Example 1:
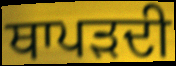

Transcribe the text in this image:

ਥਾਪੜਦੀ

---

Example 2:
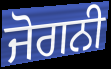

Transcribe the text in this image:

ਜੋਗਨੀ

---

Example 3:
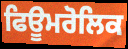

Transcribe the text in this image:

ਫਿਊਮਰੋਲਿਕ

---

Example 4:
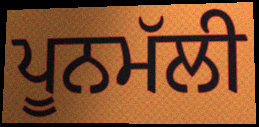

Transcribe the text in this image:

ਪੂਨਮੱਲੀ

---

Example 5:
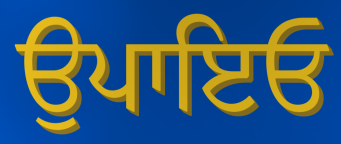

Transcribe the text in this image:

ਉਪਾਇਓ